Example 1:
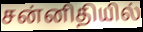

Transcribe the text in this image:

சன்னிதியில்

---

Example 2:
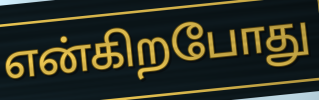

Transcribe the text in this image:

என்கிறபோது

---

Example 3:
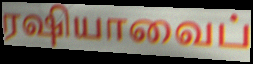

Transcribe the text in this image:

ரஷியாவைப்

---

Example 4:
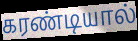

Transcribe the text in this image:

கரண்டியால்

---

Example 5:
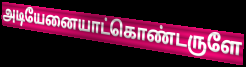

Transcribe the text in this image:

அடியேனையாட்கொண்டருளே